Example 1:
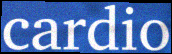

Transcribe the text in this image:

cardio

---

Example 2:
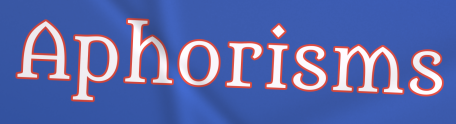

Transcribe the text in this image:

Aphorisms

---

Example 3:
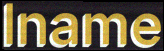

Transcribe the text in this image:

lname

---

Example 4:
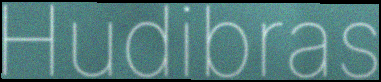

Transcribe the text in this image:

Hudibras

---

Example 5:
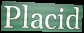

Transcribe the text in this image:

Placid